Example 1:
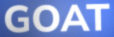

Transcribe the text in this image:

GOAT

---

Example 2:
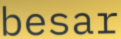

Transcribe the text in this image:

besar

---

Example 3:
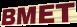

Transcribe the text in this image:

BMET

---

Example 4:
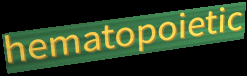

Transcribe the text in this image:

hematopoietic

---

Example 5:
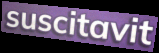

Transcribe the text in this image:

suscitavit